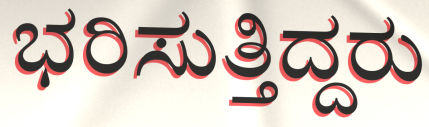
ಭರಿಸುತ್ತಿದ್ದರು